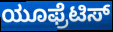
ಯೂಫ್ರೆಟಿಸ್